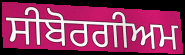
ਸੀਬੋਰਗੀਅਮ